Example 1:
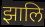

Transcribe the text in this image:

झालि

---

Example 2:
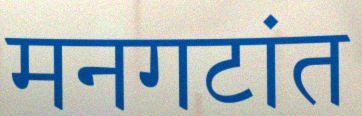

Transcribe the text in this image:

मनगटांत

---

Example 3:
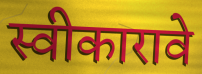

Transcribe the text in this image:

स्वीकारावे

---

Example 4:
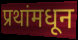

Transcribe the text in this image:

प्रथांमधून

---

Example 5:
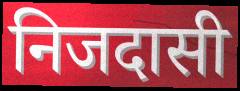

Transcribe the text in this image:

निजदासी